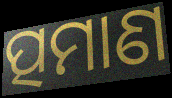
ତ୍ପମାଣ